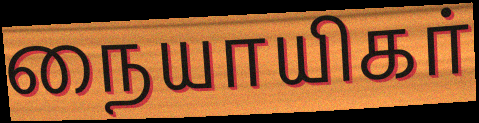
நையாயிகர்